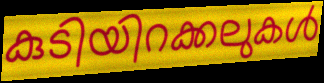
കുടിയിറക്കലുകൾ